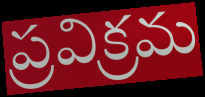
ప్రవిక్రమ